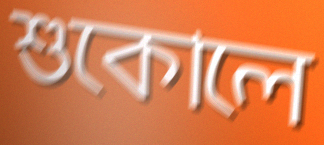
শুকোলে